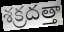
శక్రదత్తా